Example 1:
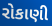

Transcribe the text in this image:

રોકાણી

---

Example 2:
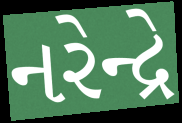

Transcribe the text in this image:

નરેન્દ્રે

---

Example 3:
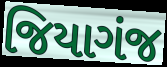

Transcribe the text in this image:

જિયાગંજ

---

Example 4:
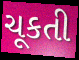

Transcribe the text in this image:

ચૂકતી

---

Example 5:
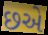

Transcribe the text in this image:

છએ